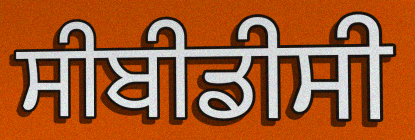
ਸੀਬੀਡੀਸੀ